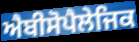
ਐਬੀਸੋਪੈਲੇਜਿਕ